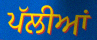
ਪੱਲੀਆਂ